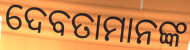
ଦେବତାମାନଙ୍କ